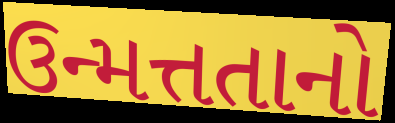
ઉન્મત્તતાનો